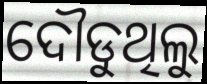
ଦୌଡୁଥିଲୁ